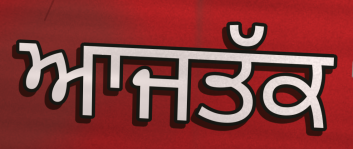
ਆਜਤੱਕ